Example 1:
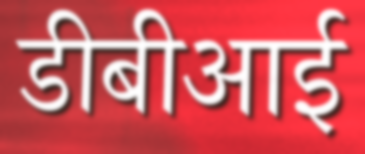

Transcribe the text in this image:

डीबीआई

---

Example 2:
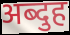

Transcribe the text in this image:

अब्दुह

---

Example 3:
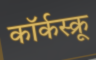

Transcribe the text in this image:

कॉर्कस्क्रू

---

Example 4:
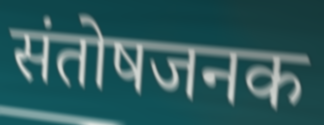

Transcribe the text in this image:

संतोषजनक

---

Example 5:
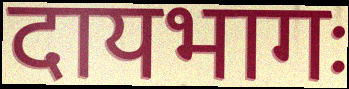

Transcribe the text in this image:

दायभागः